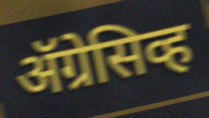
ॲग्रेसिव्ह